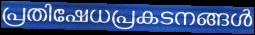
പ്രതിഷേധപ്രകടനങ്ങൾ